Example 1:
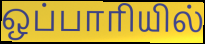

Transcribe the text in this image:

ஒப்பாரியில்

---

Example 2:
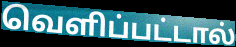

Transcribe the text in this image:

வெளிப்பட்டால்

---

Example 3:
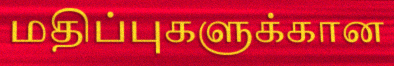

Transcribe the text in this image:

மதிப்புகளுக்கான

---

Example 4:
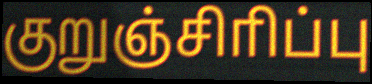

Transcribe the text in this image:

குறுஞ்சிரிப்பு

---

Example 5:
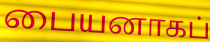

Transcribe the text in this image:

பையனாகப்